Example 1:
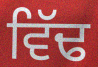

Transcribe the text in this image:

ਵਿੱਢ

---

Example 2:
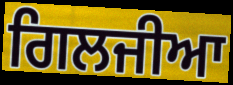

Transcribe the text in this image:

ਗਿਲਜੀਆ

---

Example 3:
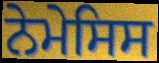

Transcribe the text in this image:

ਨੇਮੇਸਿਸ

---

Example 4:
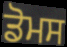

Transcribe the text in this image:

ਡੋਮਸ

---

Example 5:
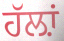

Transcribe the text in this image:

ਹੱਲ਼ਾਂ